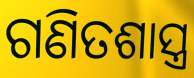
ଗଣିତଶାସ୍ତ୍ର